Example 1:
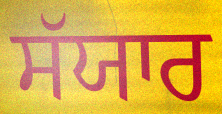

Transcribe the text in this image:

ਸੱਯਾਰ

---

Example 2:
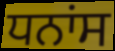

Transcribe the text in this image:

ਧਨਾਂਸ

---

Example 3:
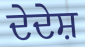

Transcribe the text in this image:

ਦੇਦੇਸ਼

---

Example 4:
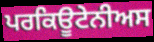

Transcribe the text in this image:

ਪਰਕਿਊਟੇਨੀਅਸ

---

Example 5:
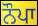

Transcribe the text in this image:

ਨੌਪਾ